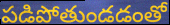
పడిపోతుండడంతో